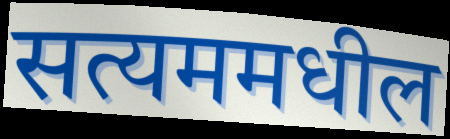
सत्यममधील